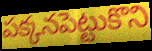
పక్కనపెట్టుకొని